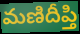
మణిదీప్తి